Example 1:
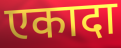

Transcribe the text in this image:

एकादा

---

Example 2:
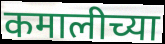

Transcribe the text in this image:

कमालीच्या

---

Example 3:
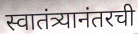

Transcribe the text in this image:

स्वातंत्र्यानंतरची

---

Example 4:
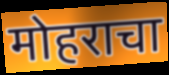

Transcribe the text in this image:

मोहराचा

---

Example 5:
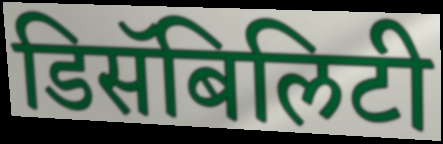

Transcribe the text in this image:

डिसॅबिलिटी